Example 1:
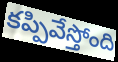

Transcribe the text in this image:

కప్పివేస్తోంది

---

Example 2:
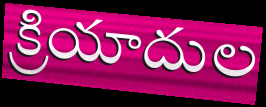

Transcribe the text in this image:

క్రియాదుల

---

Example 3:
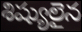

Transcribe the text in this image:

శిష్యులైన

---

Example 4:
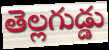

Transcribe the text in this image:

తెల్లగుడ్డు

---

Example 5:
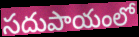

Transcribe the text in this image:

సదుపాయంలో